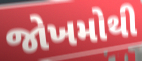
જોખમોથી